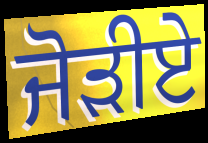
ਜੋੜੀਏ